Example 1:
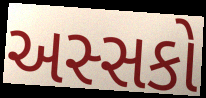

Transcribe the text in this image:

અસ્સકો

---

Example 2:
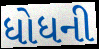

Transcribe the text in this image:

ધોધની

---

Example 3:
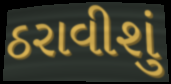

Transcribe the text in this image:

ઠરાવીશું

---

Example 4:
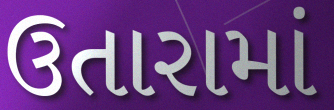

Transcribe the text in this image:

ઉતારામાં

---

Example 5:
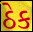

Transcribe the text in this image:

ઠેક